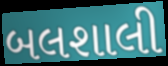
બલશાલી